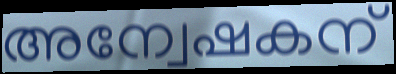
അന്വേഷകന്